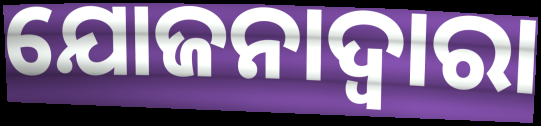
ଯୋଜନାଦ୍ୱାରା